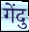
गेंदु